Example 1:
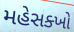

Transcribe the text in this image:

મહેસક્ખો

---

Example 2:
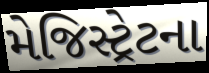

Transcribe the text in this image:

મેજિસ્ટ્રેટના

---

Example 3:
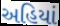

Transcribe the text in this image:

અહિયાં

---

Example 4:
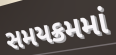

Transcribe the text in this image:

સમયક્રમમાં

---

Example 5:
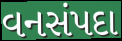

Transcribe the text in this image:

વનસંપદા